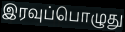
இரவுப்பொழுது